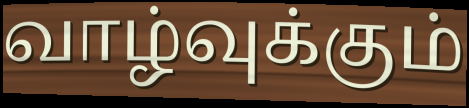
வாழ்வுக்கும்